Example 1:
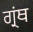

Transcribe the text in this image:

ਗ੍ਰਂਥ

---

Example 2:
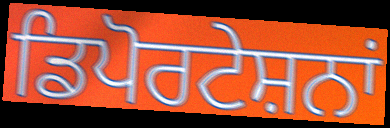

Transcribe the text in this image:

ਡਿਪੋਰਟੇਸ਼ਨਾਂ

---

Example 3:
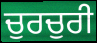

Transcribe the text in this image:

ਚੁਰਚੁਰੀ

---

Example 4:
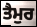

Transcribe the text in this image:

ਤੈਮੁਰ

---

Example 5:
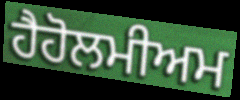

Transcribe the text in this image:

ਹੈਹੋਲਮੀਅਮ